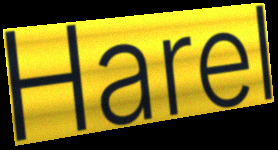
Harel